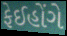
ફેઈહોંગે